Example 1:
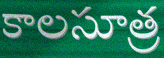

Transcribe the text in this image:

కాలసూత్ర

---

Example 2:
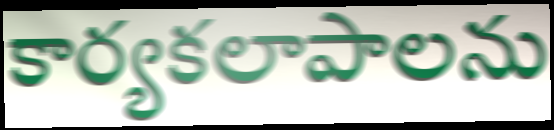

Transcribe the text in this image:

కార్యకలాపాలను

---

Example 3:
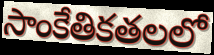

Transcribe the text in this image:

సాంకేతికతలలో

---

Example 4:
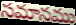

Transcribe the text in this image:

సమానము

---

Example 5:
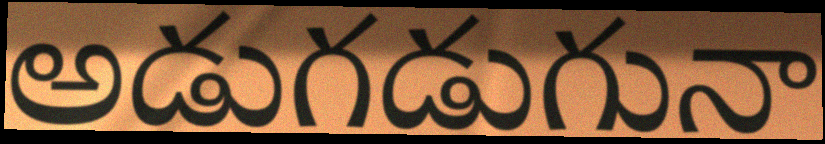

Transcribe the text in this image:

అడుగడుగునా